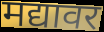
मद्यावर